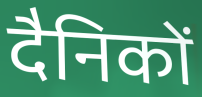
दैनिकों